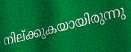
നില്ക്കുകയായിരുന്നു